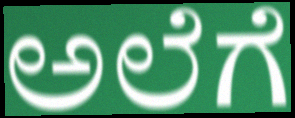
ಅಲೆಗೆ